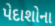
પેદાશોના